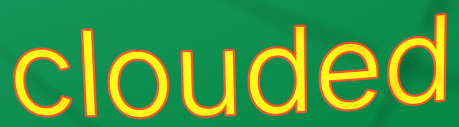
clouded